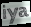
iya